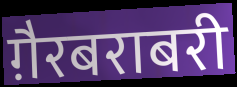
ग़ैरबराबरी